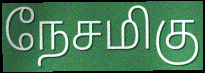
நேசமிகு